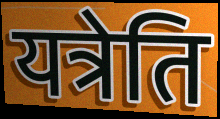
यत्रेति